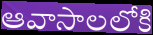
ఆవాసాలలోకి